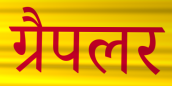
ग्रैपलर